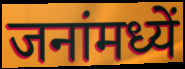
जनांमध्यें